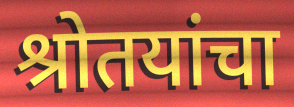
श्रोतयांचा